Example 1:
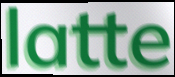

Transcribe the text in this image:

latte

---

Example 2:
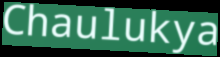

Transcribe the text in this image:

Chaulukya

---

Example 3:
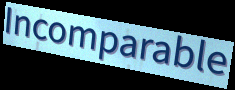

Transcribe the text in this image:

Incomparable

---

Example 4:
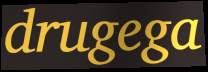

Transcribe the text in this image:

drugega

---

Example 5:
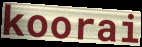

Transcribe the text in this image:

koorai